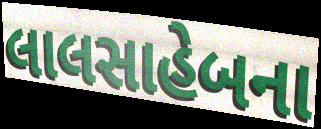
લાલસાહેબના